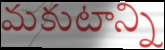
మకుటాన్ని